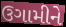
ઉગામીને